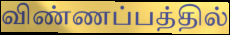
விண்ணப்பத்தில்